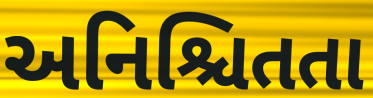
અનિશ્ચિતતા